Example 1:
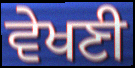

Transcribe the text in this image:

ਵੇਖਣੀ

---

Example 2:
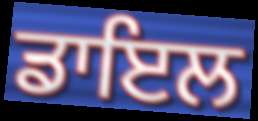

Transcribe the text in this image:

ਡਾਇਲ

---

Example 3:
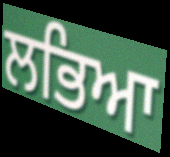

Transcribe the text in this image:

ਲਭਿਆ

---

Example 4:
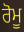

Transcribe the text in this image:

ਰੋਮੂ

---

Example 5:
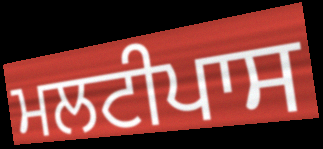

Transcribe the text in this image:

ਮਲਟੀਪਾਸ